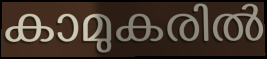
കാമുകരിൽ